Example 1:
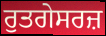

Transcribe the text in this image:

ਰੁਤਗੇਸਰਜ਼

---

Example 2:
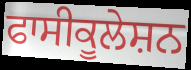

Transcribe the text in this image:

ਫਾਸੀਕੂਲੇਸ਼ਨ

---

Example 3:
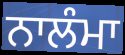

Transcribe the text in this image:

ਨਾਲੰਮਾ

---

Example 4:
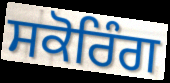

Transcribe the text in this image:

ਸਕੋਰਿੰਗ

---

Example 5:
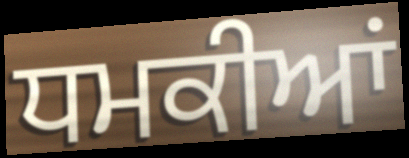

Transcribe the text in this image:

ਧਮਕੀਆਂ